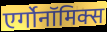
एर्गोनॉमिक्स